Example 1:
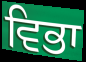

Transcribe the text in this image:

ਵਿਭਾ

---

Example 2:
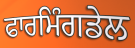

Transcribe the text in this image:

ਫਾਰਮਿੰਗਡੇਲ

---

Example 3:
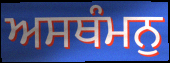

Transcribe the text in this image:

ਅਸਥੰਮਨੁ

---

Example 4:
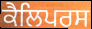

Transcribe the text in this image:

ਕੈਲਿਪਰਸ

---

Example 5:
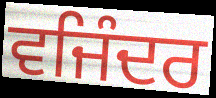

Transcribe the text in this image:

ਵਜਿੰਦਰ